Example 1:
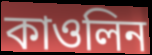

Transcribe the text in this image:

কাওলিন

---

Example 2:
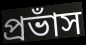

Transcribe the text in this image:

প্রভাঁস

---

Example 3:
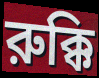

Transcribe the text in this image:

রুক্কি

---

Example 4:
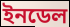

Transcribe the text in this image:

ইনডেল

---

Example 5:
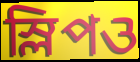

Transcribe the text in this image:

স্লিপও